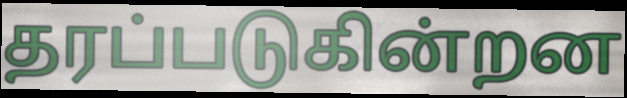
தரப்படுகின்றன